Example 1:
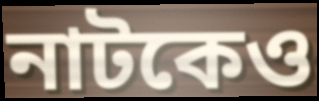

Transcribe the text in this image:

নাটকেও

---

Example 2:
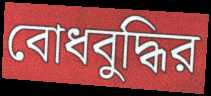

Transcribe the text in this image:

বোধবুদ্ধির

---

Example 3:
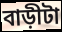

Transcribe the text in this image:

বাড়ীটা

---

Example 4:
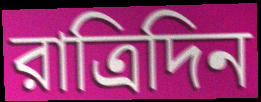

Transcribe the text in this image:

রাত্রিদিন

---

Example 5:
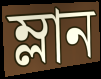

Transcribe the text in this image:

ম্লান